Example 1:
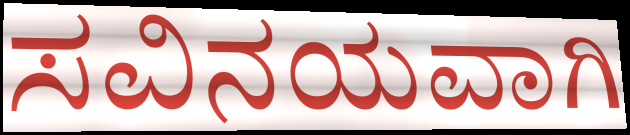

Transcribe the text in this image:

ಸವಿನಯವಾಗಿ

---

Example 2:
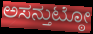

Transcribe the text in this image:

ಅಸನ್ತುಟ್ಠೋ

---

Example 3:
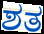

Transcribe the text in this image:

ಶತ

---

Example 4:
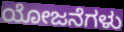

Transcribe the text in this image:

ಯೋಜನೆಗಳು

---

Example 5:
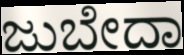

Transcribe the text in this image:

ಜುಬೇದಾ